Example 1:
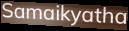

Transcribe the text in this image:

Samaikyatha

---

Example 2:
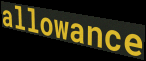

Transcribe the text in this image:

allowance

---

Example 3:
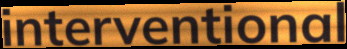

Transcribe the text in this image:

interventional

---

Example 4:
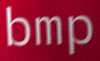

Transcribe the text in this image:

bmp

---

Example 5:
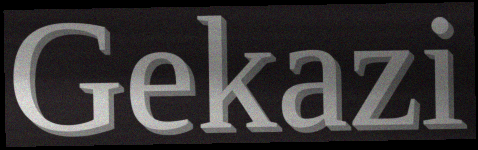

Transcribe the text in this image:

Gekazi